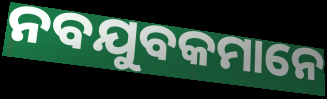
ନବଯୁବକମାନେ